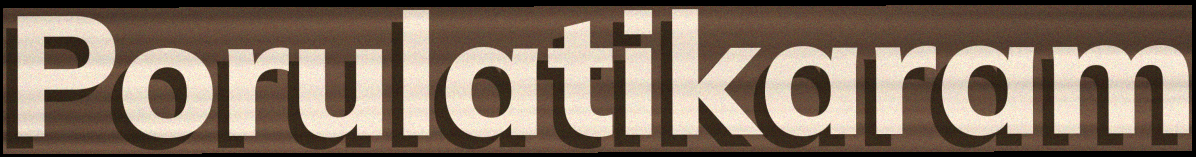
Porulatikaram